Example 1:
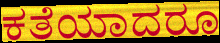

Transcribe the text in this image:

ಕತೆಯಾದರೂ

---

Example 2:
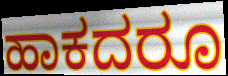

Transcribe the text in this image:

ಹಾಕದರೂ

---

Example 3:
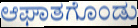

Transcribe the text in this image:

ಆಘಾತಗೊಂಡು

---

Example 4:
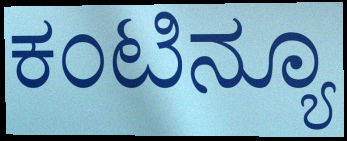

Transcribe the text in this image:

ಕಂಟಿನ್ಯೂ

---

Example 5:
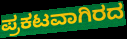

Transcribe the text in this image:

ಪ್ರಕಟವಾಗಿರದ